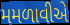
મમળાવીએ